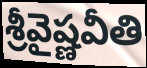
శ్రీవైష్ణవీతి